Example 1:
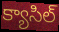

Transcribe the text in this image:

క్యాసిల్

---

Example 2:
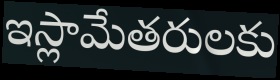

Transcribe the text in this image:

ఇస్లామేతరులకు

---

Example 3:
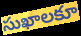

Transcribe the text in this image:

సుఖాలకూ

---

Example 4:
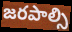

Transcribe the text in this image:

జరపాల్సి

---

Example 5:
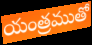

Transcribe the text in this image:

యంత్రముతో